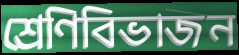
শ্রেণিবিভাজন